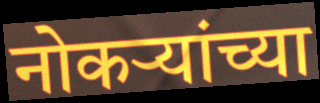
नोकर्‍यांच्या